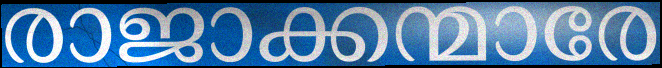
രാജാക്കന്മാരേ